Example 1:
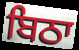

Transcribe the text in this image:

ਬਿਠਾ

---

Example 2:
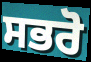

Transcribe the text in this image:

ਸਭਰੋ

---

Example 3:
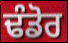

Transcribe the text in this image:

ਢੰਡੋਰ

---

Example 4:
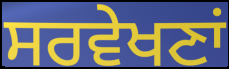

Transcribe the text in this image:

ਸਰਵੇਖਣਾਂ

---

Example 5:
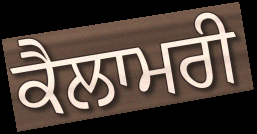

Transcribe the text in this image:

ਕੈਲਾਮਰੀ